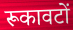
रूकावटों